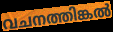
വചനത്തിങ്കൽ